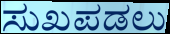
ಸುಖಪಡಲು